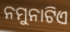
ନମୁନାଟିଏ